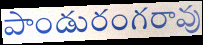
పాండురంగరావు